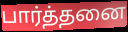
பார்த்தனை